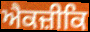
ਐਕਜ਼ੀਕਿ